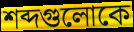
শব্দগুলোকে